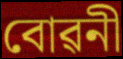
বোৱনী